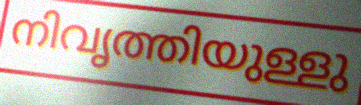
നിവൃത്തിയുള്ളു